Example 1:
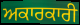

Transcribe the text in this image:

ਅਕਾਰਕਾਰੀ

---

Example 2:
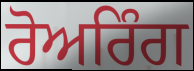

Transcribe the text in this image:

ਰੋਅਰਿੰਗ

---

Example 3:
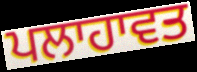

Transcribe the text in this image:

ਪਲਾਹਾਵਤ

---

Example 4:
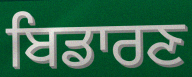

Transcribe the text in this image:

ਬਿਡਾਰਣ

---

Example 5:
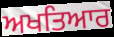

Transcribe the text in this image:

ਅਖਤਿਆਰ